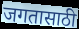
जगतासाठी